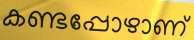
കണ്ടപ്പോഴാണ്